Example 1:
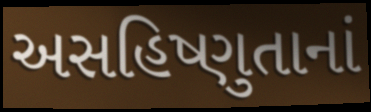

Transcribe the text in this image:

અસહિષ્ણુતાનાં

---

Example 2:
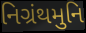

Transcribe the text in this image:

નિગ્રંથમુનિ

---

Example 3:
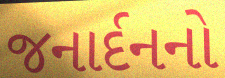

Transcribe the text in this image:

જનાર્દનનો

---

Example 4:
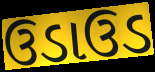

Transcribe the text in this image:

ઉડાઉડ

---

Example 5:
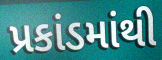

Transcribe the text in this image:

પ્રકાંડમાંથી